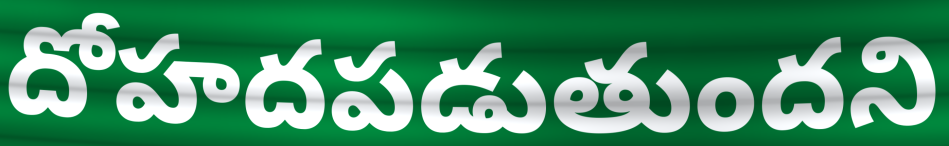
దోహదపడుతుందని